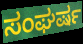
ಸಂಘರ್ಷ